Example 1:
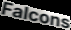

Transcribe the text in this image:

Falcons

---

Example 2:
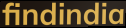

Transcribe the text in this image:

findindia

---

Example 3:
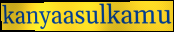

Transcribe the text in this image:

kanyaasulkamu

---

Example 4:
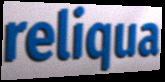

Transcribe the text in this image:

reliqua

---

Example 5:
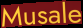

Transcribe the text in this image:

Musale